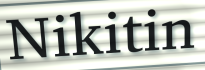
Nikitin